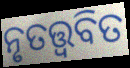
ନୃତତ୍ତ୍ୱବିତ